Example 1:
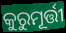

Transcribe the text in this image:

କୁରୁମୂର୍ତ୍ତୀ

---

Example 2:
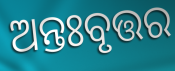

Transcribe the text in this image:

ଅନ୍ତଃବୃତ୍ତର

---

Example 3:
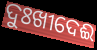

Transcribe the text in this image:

ଦୁଃଖୀଦେଈ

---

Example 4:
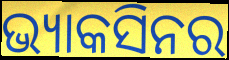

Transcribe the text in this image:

ଭ୍ୟାକସିନର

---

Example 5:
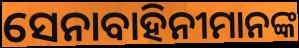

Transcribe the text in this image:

ସେନାବାହିନୀମାନଙ୍କ